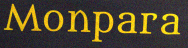
Monpara